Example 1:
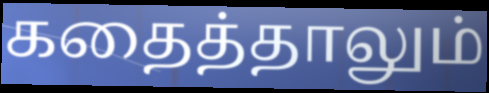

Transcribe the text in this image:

கதைத்தாலும்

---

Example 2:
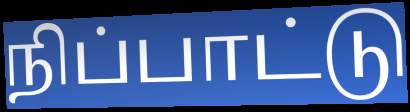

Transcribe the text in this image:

நிப்பாட்டு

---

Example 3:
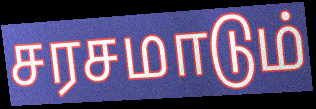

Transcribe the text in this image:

சரசமாடும்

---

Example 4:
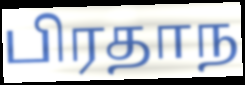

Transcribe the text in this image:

பிரதாந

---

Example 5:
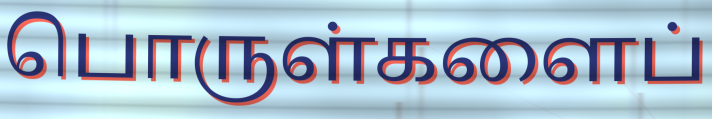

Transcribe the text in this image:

பொருள்களைப்